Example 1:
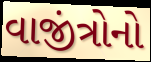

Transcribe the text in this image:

વાજીંત્રોનો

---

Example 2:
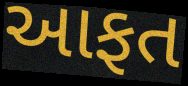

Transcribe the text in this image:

આફત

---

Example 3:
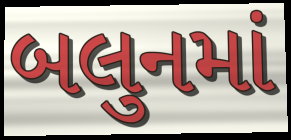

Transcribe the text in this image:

બલુનમાં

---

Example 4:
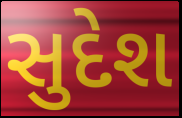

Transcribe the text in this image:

સુદેશ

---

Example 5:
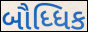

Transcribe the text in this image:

બૌધ્ધિક